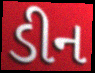
ડીન